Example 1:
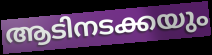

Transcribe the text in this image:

ആടിനടക്കയും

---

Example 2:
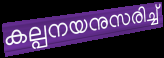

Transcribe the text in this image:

കല്പനയനുസരിച്ച്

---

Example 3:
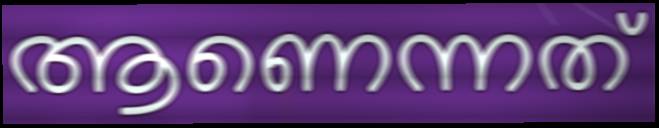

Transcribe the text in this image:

ആണെന്നത്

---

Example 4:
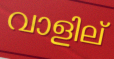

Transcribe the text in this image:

വാളില്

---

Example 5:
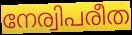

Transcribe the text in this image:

നേര്വിപരീത